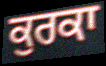
ਕੁਰਕਾ